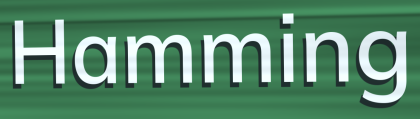
Hamming